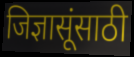
जिज्ञासूंसाठी